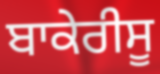
ਬਾਕੇਰੀਸੂ